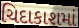
ચિદાકાશમાં